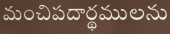
మంచిపదార్థములను